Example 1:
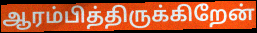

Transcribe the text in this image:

ஆரம்பித்திருக்கிறேன்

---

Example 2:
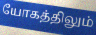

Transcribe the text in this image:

யோகத்திலும்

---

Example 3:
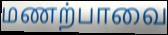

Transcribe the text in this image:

மணற்பாவை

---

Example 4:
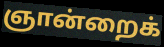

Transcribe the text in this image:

ஞான்றைக்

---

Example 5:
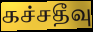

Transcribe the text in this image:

கச்சதீவு